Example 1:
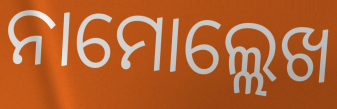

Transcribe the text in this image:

ନାମୋଲ୍ଲେଖ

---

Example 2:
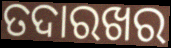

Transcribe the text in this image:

ତଦାରଖର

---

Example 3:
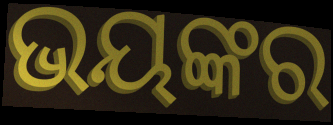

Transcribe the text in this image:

ଭୟଙ୍କର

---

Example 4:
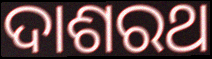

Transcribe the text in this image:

ଦାଶରଥ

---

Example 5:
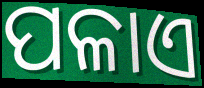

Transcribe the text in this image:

ପଳାଏ